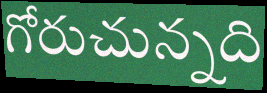
గోరుచున్నది